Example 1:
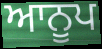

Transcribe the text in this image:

ਆਨੂਪ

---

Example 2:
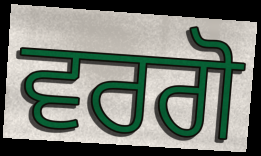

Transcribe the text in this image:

ਵਰਗੋ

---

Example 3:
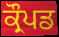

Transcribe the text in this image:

ਕ੍ਰੌਪਡ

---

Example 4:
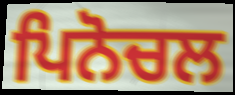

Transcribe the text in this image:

ਪਿਨੋਚਲ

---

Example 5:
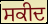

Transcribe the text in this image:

ਸਕੀਦ